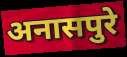
अनासपुरे